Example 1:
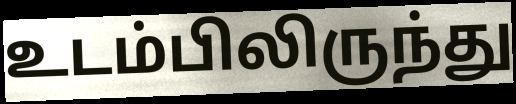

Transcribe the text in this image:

உடம்பிலிருந்து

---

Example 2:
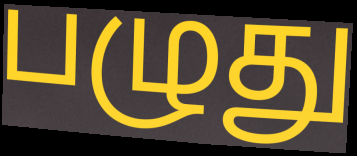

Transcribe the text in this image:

பழுது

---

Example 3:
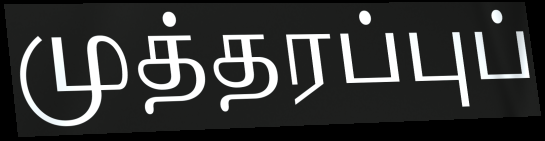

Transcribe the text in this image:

முத்தரப்புப்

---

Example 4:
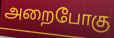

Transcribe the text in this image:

அறைபோகு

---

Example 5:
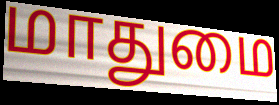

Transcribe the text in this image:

மாதுமை